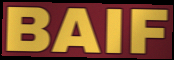
BAIF